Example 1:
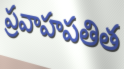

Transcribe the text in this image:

ప్రవాహపతిత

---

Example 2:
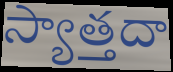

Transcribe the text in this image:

స్యాత్తదా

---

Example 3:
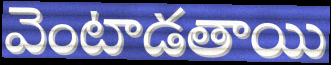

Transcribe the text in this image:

వెంటాడతాయి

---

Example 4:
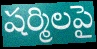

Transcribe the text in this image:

షర్మిలపై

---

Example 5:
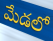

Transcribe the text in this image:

మేడలో